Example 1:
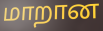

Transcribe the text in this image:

மாறான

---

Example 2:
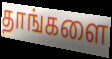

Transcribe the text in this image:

தாங்களை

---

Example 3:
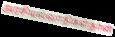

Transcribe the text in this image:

அரசியல்வாதிகள்தான்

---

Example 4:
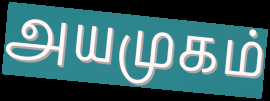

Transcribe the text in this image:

அயமுகம்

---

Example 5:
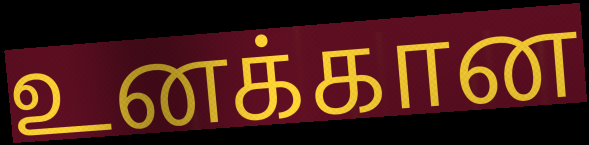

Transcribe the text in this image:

உனக்கான